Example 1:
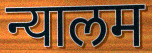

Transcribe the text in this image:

न्यालम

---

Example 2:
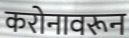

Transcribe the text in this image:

करोनावरून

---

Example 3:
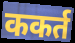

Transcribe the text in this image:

ककर्त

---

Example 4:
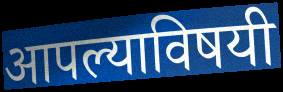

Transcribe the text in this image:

आपल्याविषयी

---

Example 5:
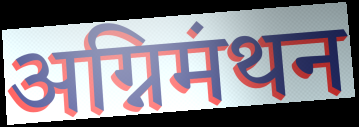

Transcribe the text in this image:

अग्निमंथन